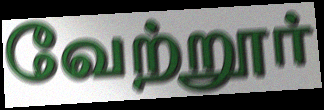
வேற்றூர்